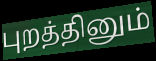
புறத்தினும்